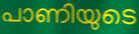
പാണിയുടെ